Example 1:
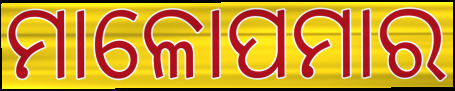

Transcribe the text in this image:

ମାଳୋପମାର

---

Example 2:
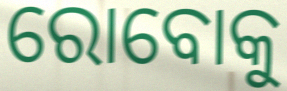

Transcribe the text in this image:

ରୋବୋକୁ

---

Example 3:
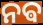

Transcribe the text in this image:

ନଵ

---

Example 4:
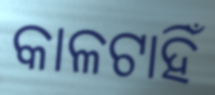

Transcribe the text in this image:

କାଳଟାହିଁ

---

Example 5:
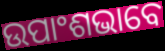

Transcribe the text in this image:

ଉପାଂଶଭାବେ